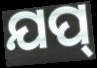
ଯପ୍